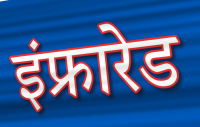
इंफ्रारेड